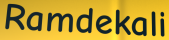
Ramdekali